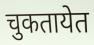
चुकतायेत